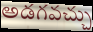
అడగవచ్చు